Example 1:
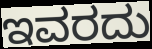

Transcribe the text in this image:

ಇವರದು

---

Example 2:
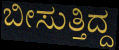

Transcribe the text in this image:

ಬೀಸುತ್ತಿದ್ದ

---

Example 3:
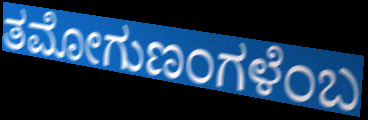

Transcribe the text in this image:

ತಮೋಗುಣಂಗಳೆಂಬ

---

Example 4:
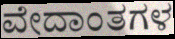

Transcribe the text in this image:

ವೇದಾಂತಗಳ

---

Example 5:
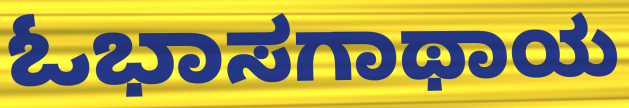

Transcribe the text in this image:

ಓಭಾಸಗಾಥಾಯ